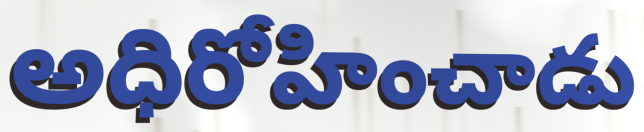
అధిరోహించాడు